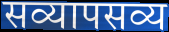
सव्यापसव्य